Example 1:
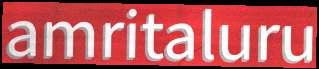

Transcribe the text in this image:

amritaluru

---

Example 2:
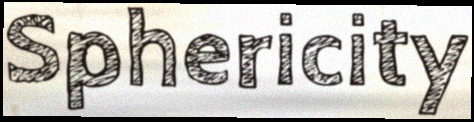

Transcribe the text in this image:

Sphericity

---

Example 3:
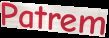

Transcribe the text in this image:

Patrem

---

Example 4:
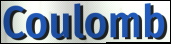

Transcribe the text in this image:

Coulomb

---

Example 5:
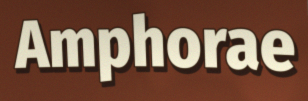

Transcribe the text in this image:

Amphorae